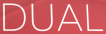
DUAL